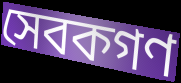
সেবকগণ